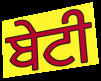
ਬੇਟੀ